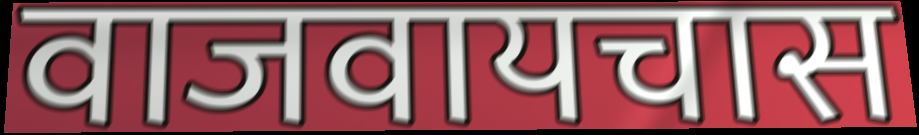
वाजवायचास